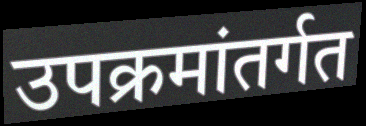
उपक्रमांतर्गत